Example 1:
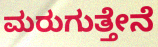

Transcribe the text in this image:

ಮರುಗುತ್ತೇನೆ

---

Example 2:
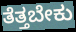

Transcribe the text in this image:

ತೆತ್ತಬೇಕು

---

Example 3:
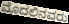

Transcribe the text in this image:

ಮೊದಲಿನವರು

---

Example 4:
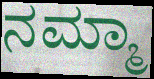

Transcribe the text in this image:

ನಮ್ಮಾ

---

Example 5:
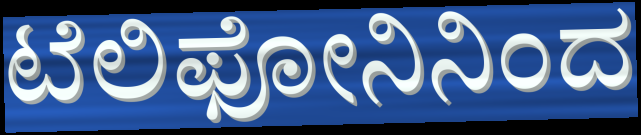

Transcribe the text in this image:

ಟೆಲಿಫೋನಿನಿಂದ